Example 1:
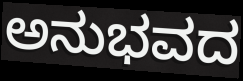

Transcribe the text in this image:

ಅನುಭವದ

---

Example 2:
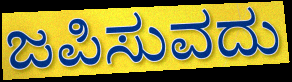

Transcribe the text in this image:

ಜಪಿಸುವದು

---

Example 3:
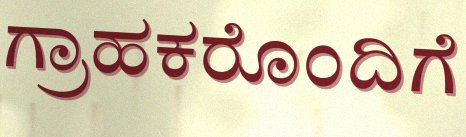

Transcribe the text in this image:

ಗ್ರಾಹಕರೊಂದಿಗೆ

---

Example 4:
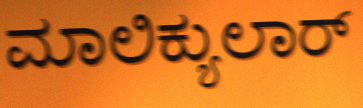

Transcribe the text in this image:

ಮಾಲಿಕ್ಯುಲಾರ್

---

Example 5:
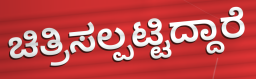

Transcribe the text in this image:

ಚಿತ್ರಿಸಲ್ಪಟ್ಟಿದ್ದಾರೆ